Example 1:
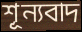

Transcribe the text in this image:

শূন্যবাদ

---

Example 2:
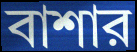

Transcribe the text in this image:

বাশার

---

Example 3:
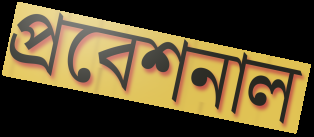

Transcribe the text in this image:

প্রবেশনাল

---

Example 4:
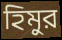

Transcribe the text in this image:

হিমুর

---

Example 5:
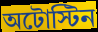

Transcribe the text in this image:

অটোস্টিন